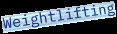
Weightlifting